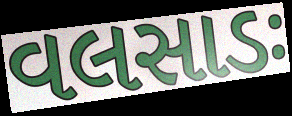
વલસાડઃ